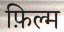
फ़िल्म